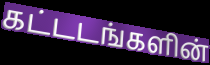
கட்டடங்களின்